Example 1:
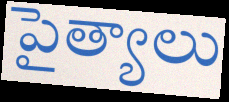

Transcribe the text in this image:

పైత్యాలు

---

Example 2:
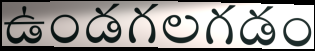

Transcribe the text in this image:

ఉండగలగడం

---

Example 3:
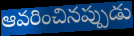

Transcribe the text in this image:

ఆవరించినప్పుడు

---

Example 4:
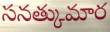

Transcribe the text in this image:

సనత్కుమార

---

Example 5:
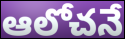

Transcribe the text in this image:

ఆలోచనే